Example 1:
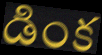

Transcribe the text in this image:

డింక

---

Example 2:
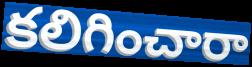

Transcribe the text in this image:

కలిగించారా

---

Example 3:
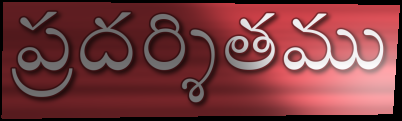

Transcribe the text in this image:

ప్రదర్శితము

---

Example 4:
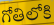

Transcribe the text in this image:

గోతిలోకి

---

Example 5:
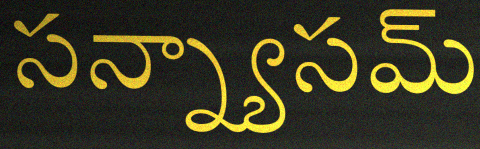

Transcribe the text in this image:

సన్న్యాసమ్